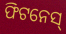
ଫିଟନେସ୍